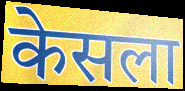
केसला